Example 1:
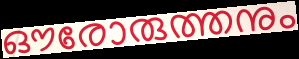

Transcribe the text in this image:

ഔരോരുത്തനും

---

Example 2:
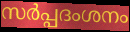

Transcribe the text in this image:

സർപ്പദംശനം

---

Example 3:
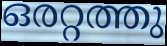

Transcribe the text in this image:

ഒരറ്റത്തു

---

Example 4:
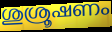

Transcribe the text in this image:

ശുശ്രൂഷണം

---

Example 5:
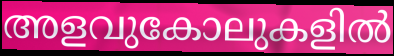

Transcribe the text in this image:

അളവുകോലുകളിൽ